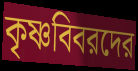
কৃষ্ণবিবরদের